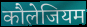
कौलेजियम